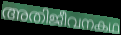
അതിജീവനകഥ